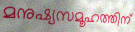
മനുഷ്യസമൂഹത്തിന്